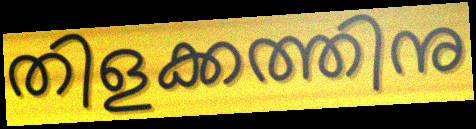
തിളക്കത്തിനു